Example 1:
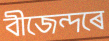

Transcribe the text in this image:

বীজেন্দৰে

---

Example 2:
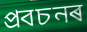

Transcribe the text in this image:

প্ৰবচনৰ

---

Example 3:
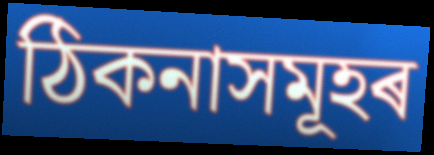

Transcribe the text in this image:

ঠিকনাসমূহৰ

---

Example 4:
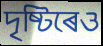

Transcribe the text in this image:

দৃষ্টিৰেও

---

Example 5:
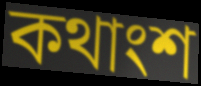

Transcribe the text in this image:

কথাংশ